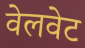
वेलवेट